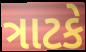
ત્રાટકે